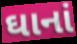
ઘાનાં